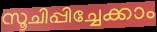
സൂചിപ്പിച്ചേക്കാം